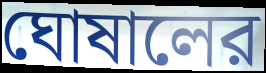
ঘোষালের